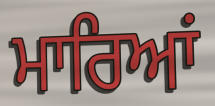
ਮਾਰਿਆਂ